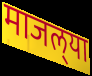
माजल्या